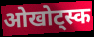
ओखोट्स्क